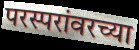
परस्परांवरच्या